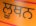
ਲੂਥਨ